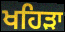
ਖਹਿਡ਼ਾ